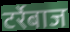
टर्रेबाज